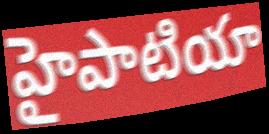
హైపాటియా